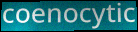
coenocytic